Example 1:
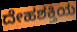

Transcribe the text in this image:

ದೇಹಶಕ್ತಿಯ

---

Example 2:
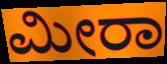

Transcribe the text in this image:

ಮೀರಾ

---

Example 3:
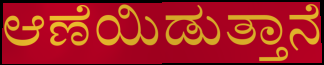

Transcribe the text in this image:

ಆಣೆಯಿಡುತ್ತಾನೆ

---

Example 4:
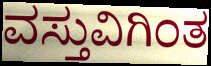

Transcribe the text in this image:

ವಸ್ತುವಿಗಿಂತ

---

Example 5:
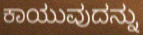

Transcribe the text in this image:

ಕಾಯುವುದನ್ನು